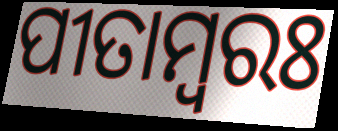
ପୀତାମ୍ୱରଃ